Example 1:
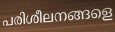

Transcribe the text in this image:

പരിശീലനങ്ങളെ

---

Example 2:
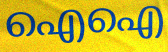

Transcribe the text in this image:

ഐഐ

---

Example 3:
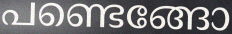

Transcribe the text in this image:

പണ്ടെങ്ങോ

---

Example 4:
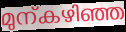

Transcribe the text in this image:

മുന്കഴിഞ്ഞ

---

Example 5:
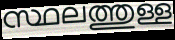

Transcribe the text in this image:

സ്ഥലത്തുള്ള